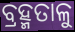
ବ୍ରହ୍ମତାଳୁ